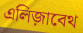
এলিজ়াবেথ